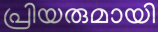
പ്രിയരുമായി